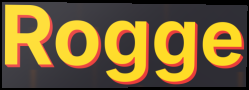
Rogge